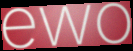
ewo